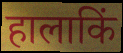
हालाकिं